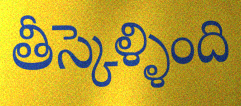
తీస్కెళ్ళింది